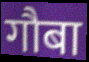
गौबा